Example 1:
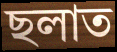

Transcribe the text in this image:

ছলাত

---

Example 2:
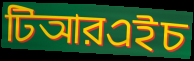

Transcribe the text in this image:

টিআরএইচ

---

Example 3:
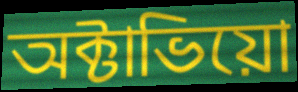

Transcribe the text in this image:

অক্টাভিয়ো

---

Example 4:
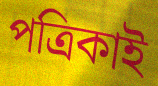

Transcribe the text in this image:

পত্রিকাই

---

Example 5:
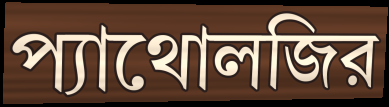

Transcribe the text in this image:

প্যাথোলজির